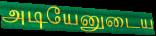
அடியேனுடைய